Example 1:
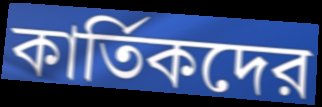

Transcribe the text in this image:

কার্তিকদের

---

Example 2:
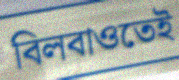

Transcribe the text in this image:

বিলবাওতেই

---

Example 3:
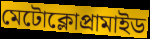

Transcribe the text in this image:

মেটোক্লোপ্রামাইড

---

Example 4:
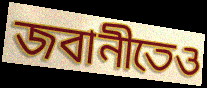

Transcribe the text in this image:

জবানীতেও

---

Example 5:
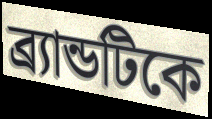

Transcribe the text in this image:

ব্র্যান্ডটিকে